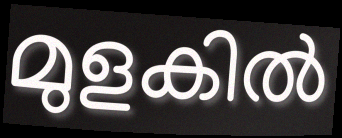
മുളകിൽ